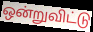
ஒன்றுவிட்டு